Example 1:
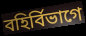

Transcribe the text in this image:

বহির্বিভাগে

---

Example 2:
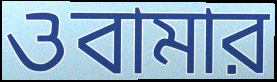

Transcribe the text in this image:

ওবামার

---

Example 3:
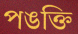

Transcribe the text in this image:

পঙক্তি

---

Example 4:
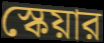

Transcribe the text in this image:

স্কেয়ার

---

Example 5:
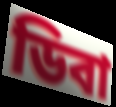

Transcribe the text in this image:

ডিবা